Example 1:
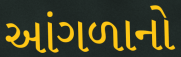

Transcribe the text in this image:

આંગળાનો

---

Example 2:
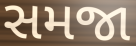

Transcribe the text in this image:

સમજા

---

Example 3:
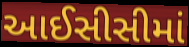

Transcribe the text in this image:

આઈસીસીમાં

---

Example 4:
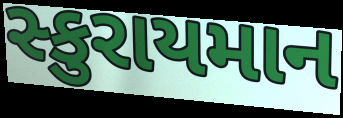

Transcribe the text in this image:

સ્કુરાયમાન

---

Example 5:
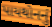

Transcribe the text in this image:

પાયથોનનું